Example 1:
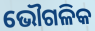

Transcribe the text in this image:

ଭୌଗଳିକ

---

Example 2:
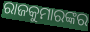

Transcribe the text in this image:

ରାଜକୁମାରଙ୍କର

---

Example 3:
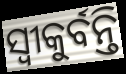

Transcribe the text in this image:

ସ୍ଵୀକୁର୍ବନ୍ତି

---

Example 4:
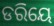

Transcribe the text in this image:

ଡରିୟେ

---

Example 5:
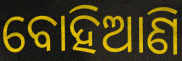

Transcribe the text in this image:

ବୋହିଆଣି